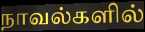
நாவல்களில்